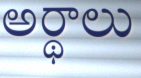
అర్థాలు